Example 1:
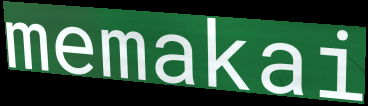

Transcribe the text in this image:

memakai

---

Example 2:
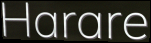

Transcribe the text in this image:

Harare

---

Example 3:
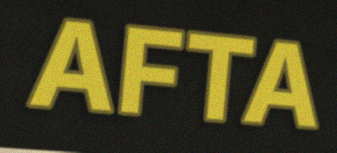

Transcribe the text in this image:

AFTA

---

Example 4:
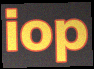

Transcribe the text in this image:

iop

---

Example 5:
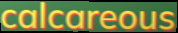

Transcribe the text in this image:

calcareous